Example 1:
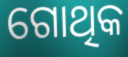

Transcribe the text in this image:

ଗୋଥିକ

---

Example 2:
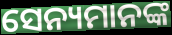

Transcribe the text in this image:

ସେନ୍ୟମାନଙ୍କ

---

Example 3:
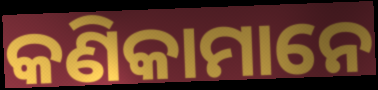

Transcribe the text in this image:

କଣିକାମାନେ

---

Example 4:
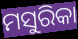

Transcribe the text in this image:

ମସୁରିକା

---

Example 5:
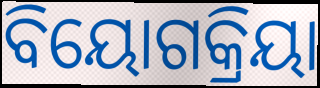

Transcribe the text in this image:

ବିୟୋଗକ୍ରିୟା